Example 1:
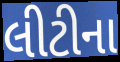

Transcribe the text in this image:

લીટીના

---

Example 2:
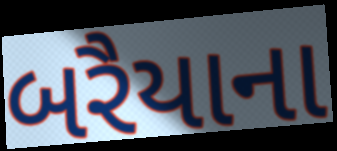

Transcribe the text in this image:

બરૈયાના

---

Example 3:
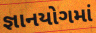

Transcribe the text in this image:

જ્ઞાનયોગમાં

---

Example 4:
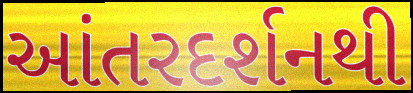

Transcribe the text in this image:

આંતરદર્શનથી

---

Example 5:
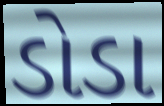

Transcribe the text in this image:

ડોડા